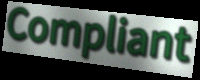
Compliant